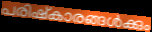
പരിഷ്കാരങ്ങൾക്കും